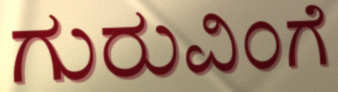
ಗುರುವಿಂಗೆ